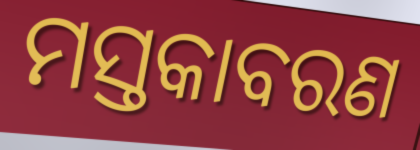
ମସ୍ତକାବରଣ